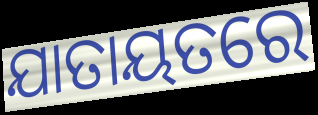
ଯାତାୟତରେ